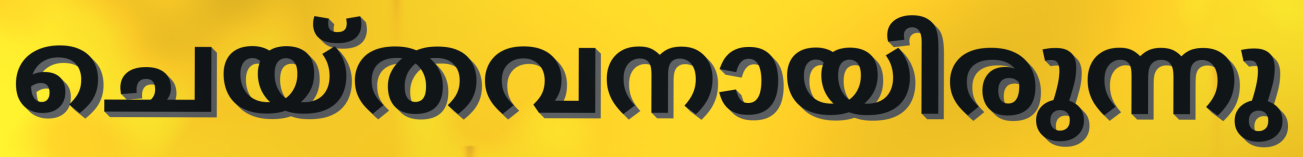
ചെയ്തവനായിരുന്നു